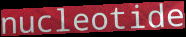
nucleotide